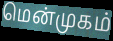
மென்முகம்